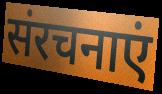
संरचनाएं